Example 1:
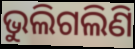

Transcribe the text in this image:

ଭୁଲିଗଲିଣି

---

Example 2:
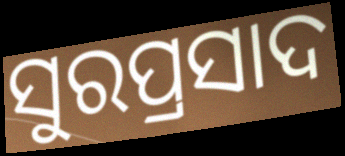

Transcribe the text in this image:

ସୁରପ୍ରସାଦ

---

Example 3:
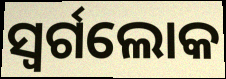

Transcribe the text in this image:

ସ୍ୱର୍ଗଲୋକ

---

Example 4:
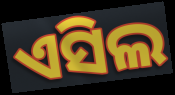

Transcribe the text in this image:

ଏସିଲ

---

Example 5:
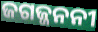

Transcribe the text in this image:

ଜଗଜ୍ଜନନୀ